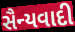
સૈન્યવાદી